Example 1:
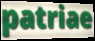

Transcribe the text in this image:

patriae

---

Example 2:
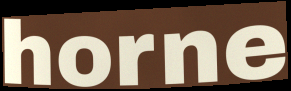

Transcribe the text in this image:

horne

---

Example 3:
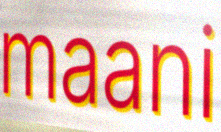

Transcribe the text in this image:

maani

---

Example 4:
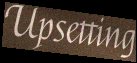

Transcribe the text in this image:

Upsetting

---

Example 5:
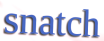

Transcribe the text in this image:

snatch